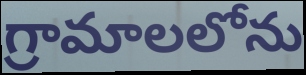
గ్రామాలలోను